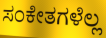
ಸಂಕೇತಗಳೆಲ್ಲ